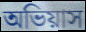
অভিয়াস